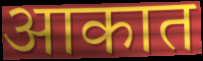
आकात